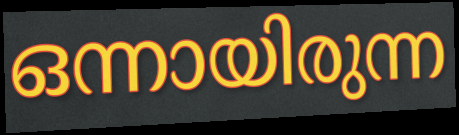
ഒന്നായിരുന്ന